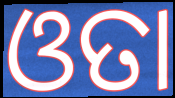
ଓତା